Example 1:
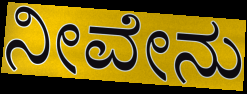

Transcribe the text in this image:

ನೀವೇನು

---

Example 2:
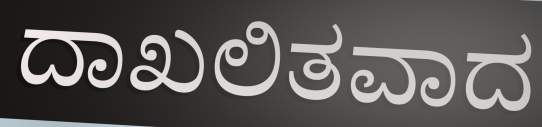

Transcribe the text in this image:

ದಾಖಲಿತವಾದ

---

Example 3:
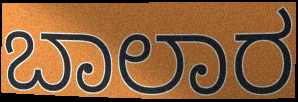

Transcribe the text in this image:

ಬಾಲಾರ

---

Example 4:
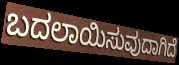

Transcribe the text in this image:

ಬದಲಾಯಿಸುವುದಾಗಿದೆ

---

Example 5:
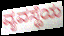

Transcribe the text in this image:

ವ್ಯವಸ್ಥೆಯ